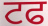
ਟਫ